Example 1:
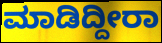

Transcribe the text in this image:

ಮಾಡಿದ್ದೀರಾ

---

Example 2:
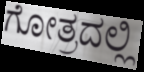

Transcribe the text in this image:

ಗೋತ್ರದಲ್ಲಿ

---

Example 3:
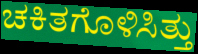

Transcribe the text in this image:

ಚಕಿತಗೊಳಿಸಿತ್ತು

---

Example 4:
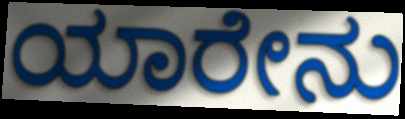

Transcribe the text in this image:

ಯಾರೇನು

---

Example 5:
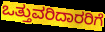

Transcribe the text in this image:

ಒತ್ತುವರಿದಾರರಿಗೆ